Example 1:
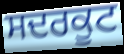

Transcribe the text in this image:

ਸਦਰਕੂਟ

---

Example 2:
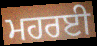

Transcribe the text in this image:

ਮਹਰਈ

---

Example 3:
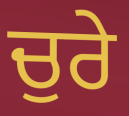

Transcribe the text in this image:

ਚੁਰੇ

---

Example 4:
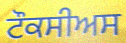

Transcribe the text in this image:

ਟੌਕਸੀਅਸ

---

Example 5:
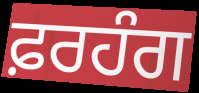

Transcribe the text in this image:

ਫ਼ਰਹੰਗ